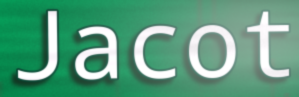
Jacot